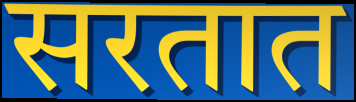
सरतात